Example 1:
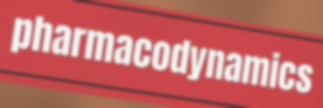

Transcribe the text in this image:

pharmacodynamics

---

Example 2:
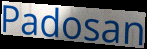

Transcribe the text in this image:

Padosan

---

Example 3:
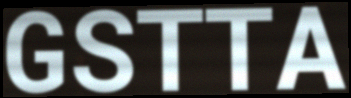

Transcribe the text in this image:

GSTTA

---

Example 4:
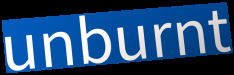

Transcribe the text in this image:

unburnt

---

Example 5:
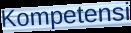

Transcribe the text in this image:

Kompetensi